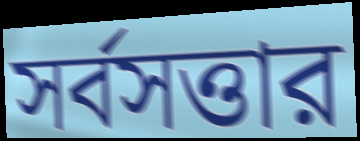
সর্বসত্তার